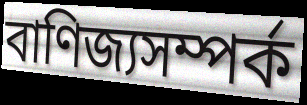
বাণিজ্যসম্পর্ক